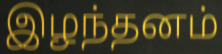
இழந்தனம்